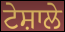
ਟੇਸ਼ਾਲੇ